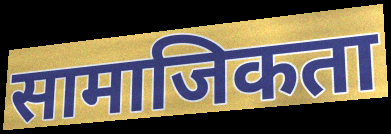
सामाजिकता